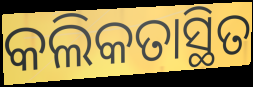
କଲିକତାସ୍ଥିତ